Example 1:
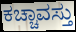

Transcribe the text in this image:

ಕಚ್ಚಾವಸ್ತು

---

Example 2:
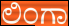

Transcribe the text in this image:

ಲಿಂಗಾ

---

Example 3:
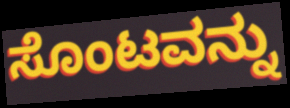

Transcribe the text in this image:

ಸೊಂಟವನ್ನು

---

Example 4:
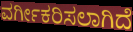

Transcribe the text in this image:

ವರ್ಗೀಕರಿಸಲಾಗಿದೆ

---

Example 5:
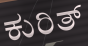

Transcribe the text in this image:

ಕುರಿತ್